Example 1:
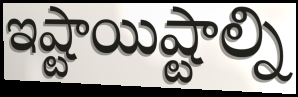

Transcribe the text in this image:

ఇష్టాయిష్టాల్ని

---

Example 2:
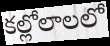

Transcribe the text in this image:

కల్లోలాలలో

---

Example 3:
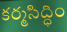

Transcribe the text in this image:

కర్మసిద్ధిం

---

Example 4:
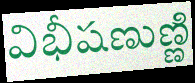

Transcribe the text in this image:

విభీషణుణ్ణి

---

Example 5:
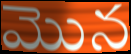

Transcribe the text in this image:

మొన